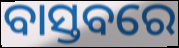
ବାସ୍ତବରେ